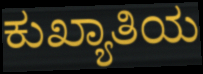
ಕುಖ್ಯಾತಿಯ